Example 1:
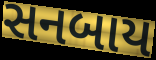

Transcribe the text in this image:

સનબાય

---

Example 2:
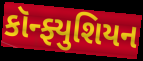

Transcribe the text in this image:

કૉન્ફ્યુશિયન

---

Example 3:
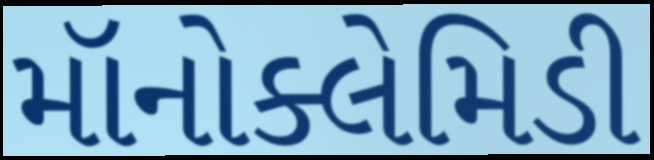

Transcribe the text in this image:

મૉનોક્લેમિડી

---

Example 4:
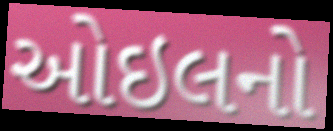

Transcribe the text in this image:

ઓઇલનો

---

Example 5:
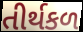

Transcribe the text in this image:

તીર્થકળ